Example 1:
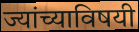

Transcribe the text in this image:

ज्यांच्याविषयी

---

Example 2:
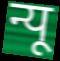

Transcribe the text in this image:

न्यू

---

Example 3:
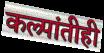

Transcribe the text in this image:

कल्पांतीही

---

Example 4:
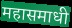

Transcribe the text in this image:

महासमाधी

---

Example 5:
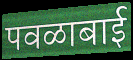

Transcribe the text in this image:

पवळाबाई